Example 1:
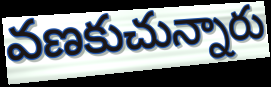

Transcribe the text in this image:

వణకుచున్నారు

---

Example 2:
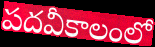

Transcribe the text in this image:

పదవీకాలంలో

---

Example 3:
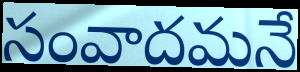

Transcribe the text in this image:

సంవాదమనే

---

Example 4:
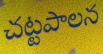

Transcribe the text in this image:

చట్టపాలన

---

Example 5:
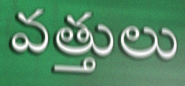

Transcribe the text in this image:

వత్తులు